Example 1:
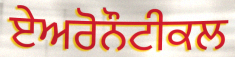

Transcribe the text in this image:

ਏਅਰੋਨੌਟੀਕਲ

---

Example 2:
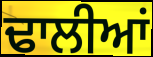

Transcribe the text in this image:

ਢਾਲੀਆਂ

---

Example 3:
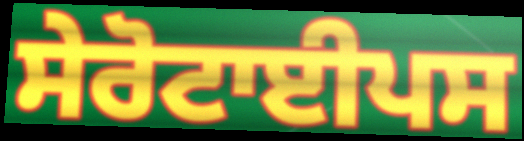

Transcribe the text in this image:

ਸੇਰੋਟਾਈਪਸ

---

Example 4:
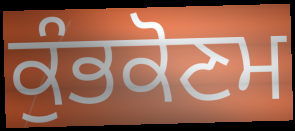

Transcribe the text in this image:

ਕੁੰਭਕੋਣਮ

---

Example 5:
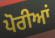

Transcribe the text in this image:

ਪੋਰੀਆਂ